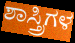
ಶಾಸ್ತ್ರಿಗಳ